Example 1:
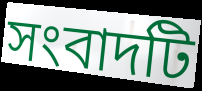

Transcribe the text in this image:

সংবাদটি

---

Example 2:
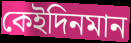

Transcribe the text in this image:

কেইদিনমান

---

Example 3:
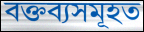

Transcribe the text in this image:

বক্তব্যসমূহত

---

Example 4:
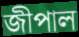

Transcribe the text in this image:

জীপাল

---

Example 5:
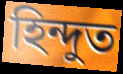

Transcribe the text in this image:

হিন্দুত